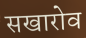
सखारोव